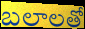
బలాలతో